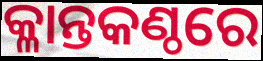
କ୍ଳାନ୍ତକଣ୍ଠରେ